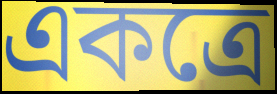
একত্ৰে